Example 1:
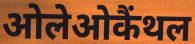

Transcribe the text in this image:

ओलेओकैंथल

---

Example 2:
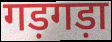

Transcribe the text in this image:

गड़गड़ा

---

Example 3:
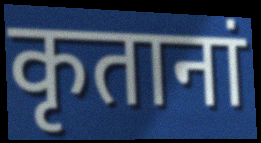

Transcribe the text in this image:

कृतानां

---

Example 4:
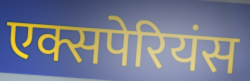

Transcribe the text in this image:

एक्सपेरियंस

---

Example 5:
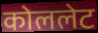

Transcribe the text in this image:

कोललेट